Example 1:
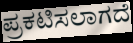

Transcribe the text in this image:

ಪ್ರಕಟಿಸಲಾಗದೆ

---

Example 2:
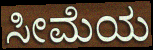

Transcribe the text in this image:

ಸೀಮೆಯ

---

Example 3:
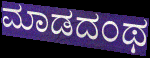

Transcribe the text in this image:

ಮಾಡದಂಥ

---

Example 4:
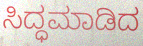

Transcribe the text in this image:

ಸಿದ್ಧಮಾಡಿದ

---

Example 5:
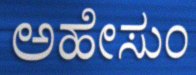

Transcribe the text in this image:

ಅಹೇಸುಂ